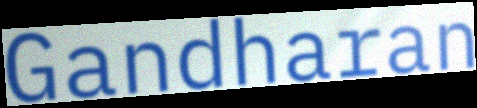
Gandharan